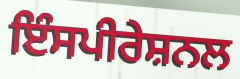
ਇੰਸਪੀਰੇਸ਼ਨਲ